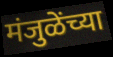
मंजुळेंच्या